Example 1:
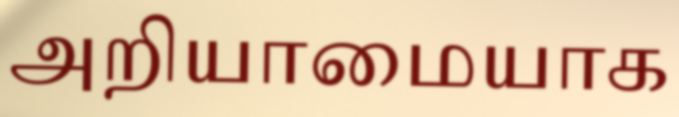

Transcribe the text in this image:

அறியாமையாக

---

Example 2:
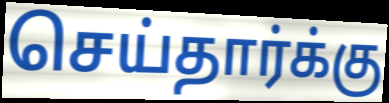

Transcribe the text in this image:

செய்தார்க்கு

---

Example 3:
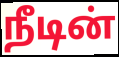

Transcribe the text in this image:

நீடின்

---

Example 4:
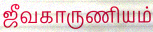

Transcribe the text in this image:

ஜீவகாருணியம்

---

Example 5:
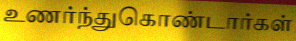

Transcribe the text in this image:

உணர்ந்துகொண்டார்கள்